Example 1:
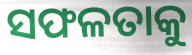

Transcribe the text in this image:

ସଫଳତାକୁ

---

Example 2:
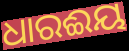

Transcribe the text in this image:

ଧାରଈୟ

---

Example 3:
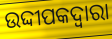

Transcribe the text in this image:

ଉଦ୍ଦୀପକଦ୍ବାରା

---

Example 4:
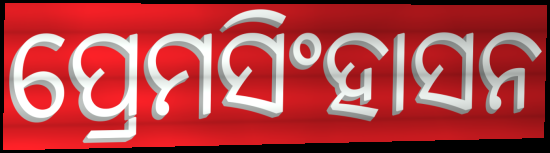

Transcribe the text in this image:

ପ୍ରେମସିଂହାସନ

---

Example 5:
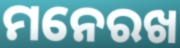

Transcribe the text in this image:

ମନେରଖ